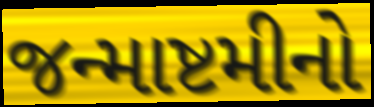
જન્માષ્ટમીનો